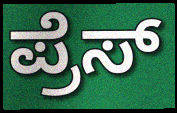
ಪ್ರೆಸ್